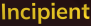
Incipient